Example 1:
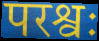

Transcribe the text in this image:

परश्वः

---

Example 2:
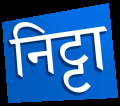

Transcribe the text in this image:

निट्टा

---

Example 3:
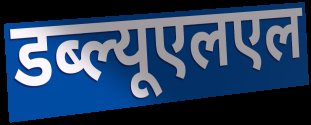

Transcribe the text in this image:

डब्ल्यूएलएल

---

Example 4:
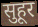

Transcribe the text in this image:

सुहूर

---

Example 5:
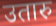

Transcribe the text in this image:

उतारु